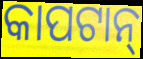
କାପଟାନ୍